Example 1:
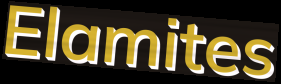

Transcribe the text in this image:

Elamites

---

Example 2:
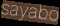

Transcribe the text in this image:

sayabo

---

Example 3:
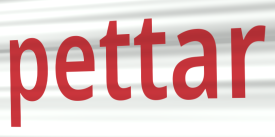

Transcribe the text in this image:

pettar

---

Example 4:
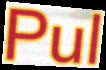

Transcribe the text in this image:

Pul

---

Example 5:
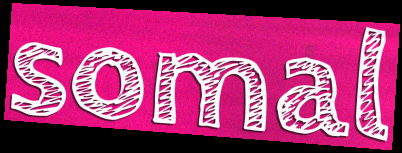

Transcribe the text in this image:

somal